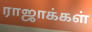
ராஜாக்கள்